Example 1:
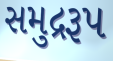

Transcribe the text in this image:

સમુદ્રરૂપ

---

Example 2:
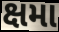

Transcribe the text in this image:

ક્ષમા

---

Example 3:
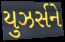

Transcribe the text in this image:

યુઝર્સને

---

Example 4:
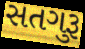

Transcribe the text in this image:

સતગુરૂ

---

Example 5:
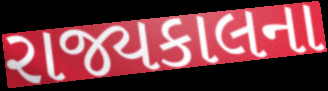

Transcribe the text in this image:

રાજ્યકાલના